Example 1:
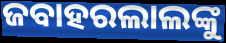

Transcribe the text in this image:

ଜବାହରଲାଲଙ୍କୁ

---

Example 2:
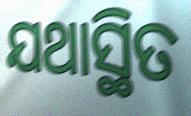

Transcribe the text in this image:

ଯଥାସ୍ଥିତ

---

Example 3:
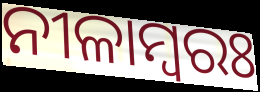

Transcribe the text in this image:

ନୀଳାମ୍ବରଃ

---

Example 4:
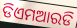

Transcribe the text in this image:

ଡିଏମଆରଡି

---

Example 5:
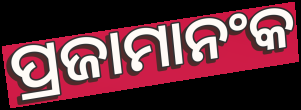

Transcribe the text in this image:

ପ୍ରଜାମାନଂକ